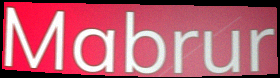
Mabrur